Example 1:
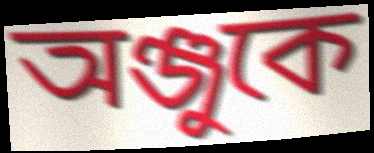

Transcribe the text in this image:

অঞ্জুকে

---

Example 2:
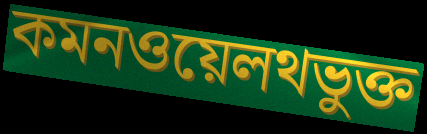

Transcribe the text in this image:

কমনওয়েলথভুক্ত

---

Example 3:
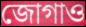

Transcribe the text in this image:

জোগাও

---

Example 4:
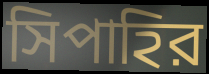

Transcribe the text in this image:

সিপাহির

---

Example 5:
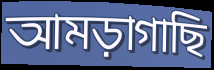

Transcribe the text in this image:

আমড়াগাছি